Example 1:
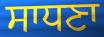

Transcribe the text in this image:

ਸਾਧਣਾ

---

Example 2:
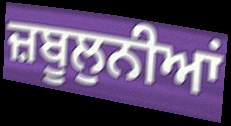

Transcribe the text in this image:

ਜ਼ਬੂਲੁਨੀਆਂ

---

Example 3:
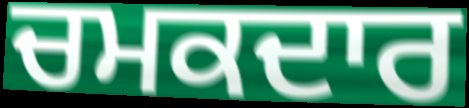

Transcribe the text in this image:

ਚਮਕਦਾਰ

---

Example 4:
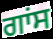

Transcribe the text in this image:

ਗਾਂਸ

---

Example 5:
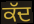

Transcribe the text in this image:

ਕੱਦ